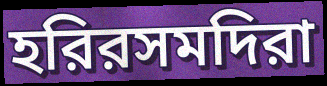
হরিরসমদিরা